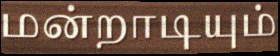
மன்றாடியும்